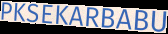
PKSEKARBABU